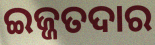
ଇଜ୍ଜତଦାର